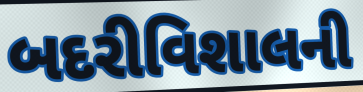
બદરીવિશાલની